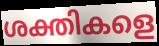
ശക്തികളെ